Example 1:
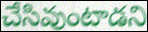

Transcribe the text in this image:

చేసివుంటాడని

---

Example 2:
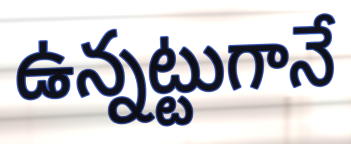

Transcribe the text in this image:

ఉన్నట్టుగానే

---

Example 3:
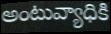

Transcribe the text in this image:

అంటువ్యాధికి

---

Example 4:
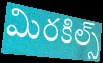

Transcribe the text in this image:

మిరకిల్స్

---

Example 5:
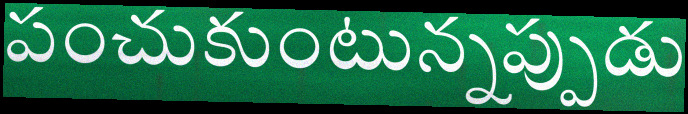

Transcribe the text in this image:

పంచుకుంటున్నప్పుడు